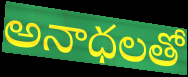
అనాధలతో